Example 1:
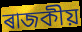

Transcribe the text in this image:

ৰাজকীয়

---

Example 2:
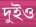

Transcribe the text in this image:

দুইও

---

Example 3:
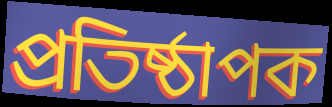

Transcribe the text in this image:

প্ৰতিষ্ঠাপক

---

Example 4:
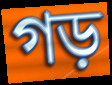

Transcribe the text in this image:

গড়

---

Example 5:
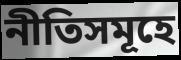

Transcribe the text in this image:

নীতিসমূহে